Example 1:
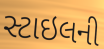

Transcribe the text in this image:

સ્ટાઇલની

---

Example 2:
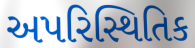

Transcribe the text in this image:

અપરિસ્થિતિક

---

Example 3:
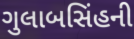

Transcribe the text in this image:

ગુલાબસિંહની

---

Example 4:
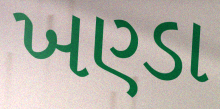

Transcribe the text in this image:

ખણ્ડા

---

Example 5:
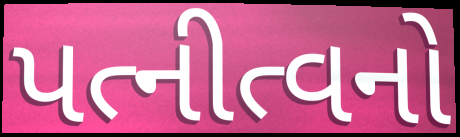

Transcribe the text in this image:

પત્નીત્વનો